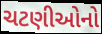
ચટણીઓનો